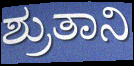
ಶ್ರುತಾನಿ